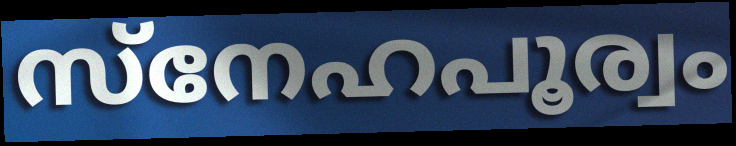
സ്നേഹപൂര്വം